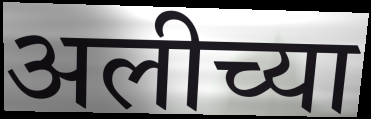
अलीच्या